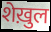
शेख़ुल